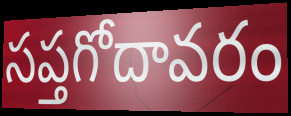
సప్తగోదావరం